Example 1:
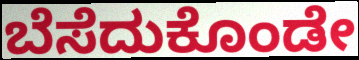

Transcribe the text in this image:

ಬೆಸೆದುಕೊಂಡೇ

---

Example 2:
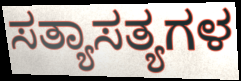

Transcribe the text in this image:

ಸತ್ಯಾಸತ್ಯಗಳ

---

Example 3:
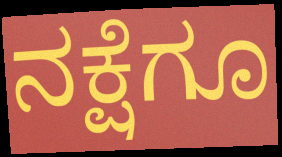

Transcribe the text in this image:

ನಕ್ಷೆಗೂ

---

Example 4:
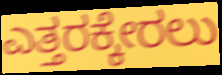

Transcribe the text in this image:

ಎತ್ತರಕ್ಕೇರಲು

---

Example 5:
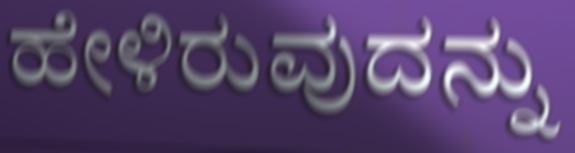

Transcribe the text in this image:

ಹೇಳಿರುವುದನ್ನು